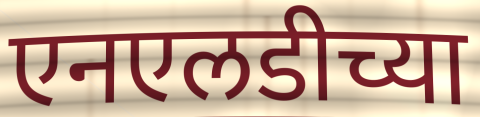
एनएलडीच्या